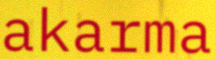
akarma